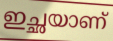
ഇച്ഛയാണ്